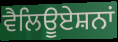
ਵੈਲਿਊਏਸ਼ਨਾਂ